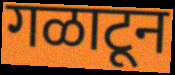
गळाटून